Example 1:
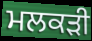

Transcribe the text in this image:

ਮਲਕੜੀ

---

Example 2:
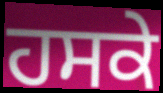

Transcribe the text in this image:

ਹਸਕੇ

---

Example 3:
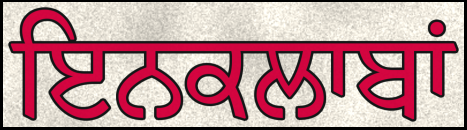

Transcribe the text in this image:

ਇਨਕਲਾਬਾਂ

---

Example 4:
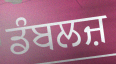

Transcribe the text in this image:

ਡੰਬਲਜ਼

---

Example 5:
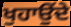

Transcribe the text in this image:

ਖੁਹਾਉਂਦੇ